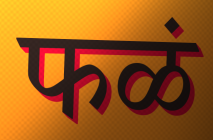
फळं